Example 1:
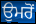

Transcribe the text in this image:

ਉਮਰੋਂ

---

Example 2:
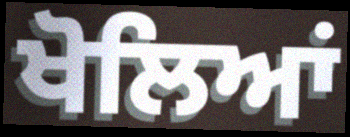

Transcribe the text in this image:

ਖੋਲਿਆਂ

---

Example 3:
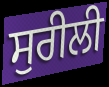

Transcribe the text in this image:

ਸੁਰੀਲੀ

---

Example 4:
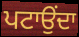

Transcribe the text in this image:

ਪਟਾਉਂਦਾ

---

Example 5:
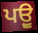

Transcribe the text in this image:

ਪਉੂ